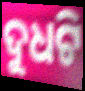
ଦୁଧଟି